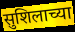
सुशिलाच्या